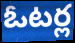
ఓటర్ల